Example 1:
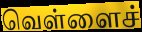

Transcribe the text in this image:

வெள்ளைச்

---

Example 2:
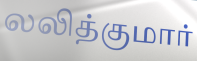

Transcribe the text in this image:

லலித்குமார்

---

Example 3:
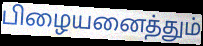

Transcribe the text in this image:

பிழையனைத்தும்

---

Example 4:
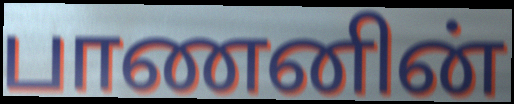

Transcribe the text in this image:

பாணனின்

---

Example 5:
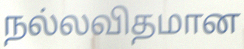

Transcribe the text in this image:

நல்லவிதமான